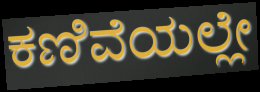
ಕಣಿವೆಯಲ್ಲೇ